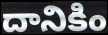
దానికిం